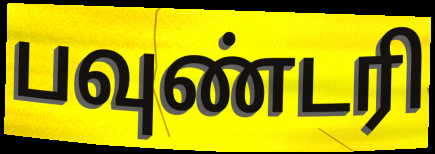
பவுண்டரி